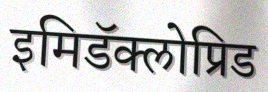
इमिडॅक्लोप्रिड